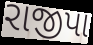
રાજીપા